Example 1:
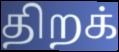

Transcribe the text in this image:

திறக்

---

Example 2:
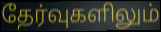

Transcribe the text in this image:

தேர்வுகளிலும்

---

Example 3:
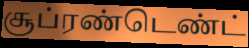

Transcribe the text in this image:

சூப்ரண்டெண்ட்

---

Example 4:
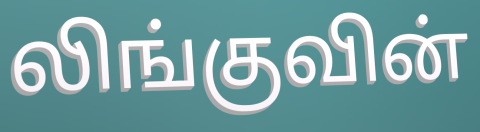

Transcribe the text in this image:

லிங்குவின்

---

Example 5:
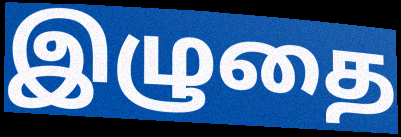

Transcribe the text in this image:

இழுதை